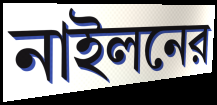
নাইলনের